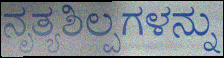
ನೃತ್ಯಶಿಲ್ಪಗಳನ್ನು